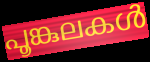
പൂങ്കുലകൾ